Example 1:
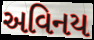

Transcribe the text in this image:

અવિનય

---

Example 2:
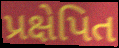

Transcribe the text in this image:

પ્રક્ષેપિત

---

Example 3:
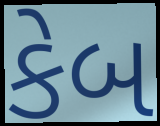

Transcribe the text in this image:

કેબ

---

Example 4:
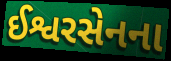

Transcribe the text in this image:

ઈશ્વરસેનના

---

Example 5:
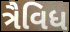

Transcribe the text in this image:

ત્રૈવિધ